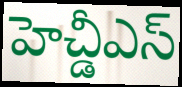
హెచ్డీఎస్